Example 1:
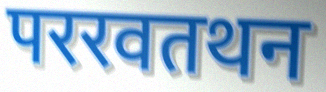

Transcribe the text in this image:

पररवतथन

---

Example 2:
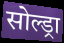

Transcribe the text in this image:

सोल्ड्रा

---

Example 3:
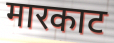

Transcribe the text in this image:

मारकाट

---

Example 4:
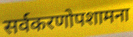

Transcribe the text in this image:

सर्वकरणोपशामना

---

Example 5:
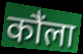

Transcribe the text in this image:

कौंला